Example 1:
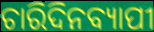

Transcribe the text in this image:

ଚାରିଦିନବ୍ୟାପୀ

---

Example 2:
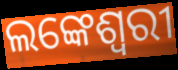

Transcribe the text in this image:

ଲଙ୍କେଶ୍ଵରୀ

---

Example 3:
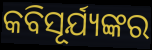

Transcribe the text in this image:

କବିସୂର୍ଯ୍ୟଙ୍କର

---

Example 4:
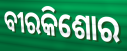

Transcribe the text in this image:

ବୀରକିଶୋର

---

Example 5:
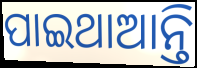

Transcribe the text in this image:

ପାଇଥାଆନ୍ତି